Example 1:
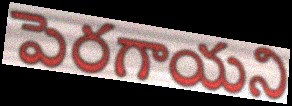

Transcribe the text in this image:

పెరగాయని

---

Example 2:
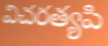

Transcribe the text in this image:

విచరత్యపి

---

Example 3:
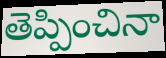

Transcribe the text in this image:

తెప్పించినా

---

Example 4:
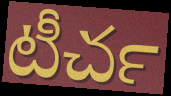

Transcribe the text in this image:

టీచర్‍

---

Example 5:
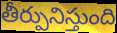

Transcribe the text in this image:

తీర్పునిస్తుంది